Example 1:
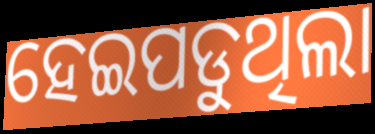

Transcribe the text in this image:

ହେଇପଡୁଥିଲା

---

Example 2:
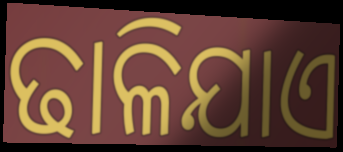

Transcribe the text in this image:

ଢାଳିଯାଏ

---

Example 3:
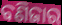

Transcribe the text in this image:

ବଣିଜାର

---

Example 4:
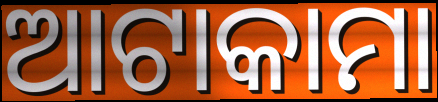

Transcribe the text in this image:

ଆଟାକାମା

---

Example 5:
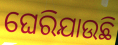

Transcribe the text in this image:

ଘେରିଯାଉଛି